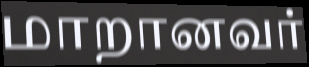
மாறானவர்